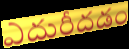
ఎదురీదడం